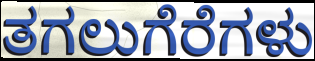
ತಗಲುಗೆರೆಗಳು